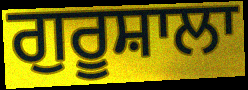
ਗੁਰੂਸ਼ਾਲਾ